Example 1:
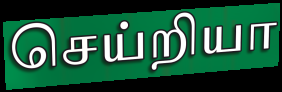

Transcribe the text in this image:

செய்றியா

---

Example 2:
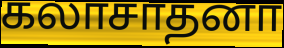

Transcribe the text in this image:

கலாசாதனா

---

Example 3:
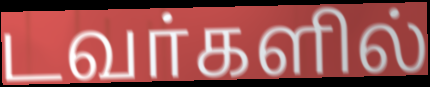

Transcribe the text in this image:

டவர்களில்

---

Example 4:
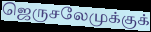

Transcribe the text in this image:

ஜெருசலேமுக்குக்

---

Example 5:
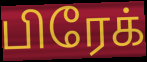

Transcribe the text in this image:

பிரேக்